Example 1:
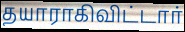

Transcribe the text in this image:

தயாராகிவிட்டார்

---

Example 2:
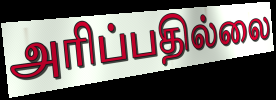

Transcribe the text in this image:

அரிப்பதில்லை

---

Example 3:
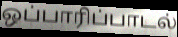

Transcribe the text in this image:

ஒப்பாரிப்பாடல்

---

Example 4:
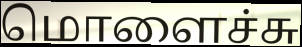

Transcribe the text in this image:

மொளைச்சு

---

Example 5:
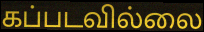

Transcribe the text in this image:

கப்படவில்லை